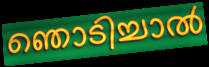
ഞൊടിച്ചാൽ